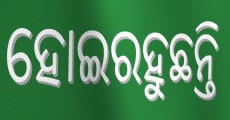
ହୋଇରହୁଛନ୍ତି